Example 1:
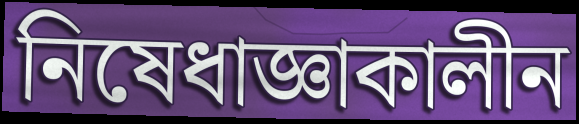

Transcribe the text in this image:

নিষেধাজ্ঞাকালীন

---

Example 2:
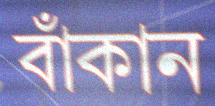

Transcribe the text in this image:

বাঁকান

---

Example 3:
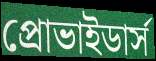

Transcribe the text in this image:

প্রোভাইডার্স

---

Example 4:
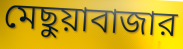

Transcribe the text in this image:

মেছুয়াবাজার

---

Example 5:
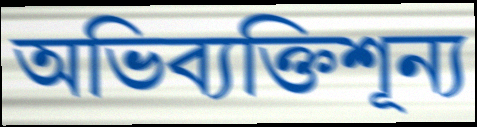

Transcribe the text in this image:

অভিব্যক্তিশূন্য